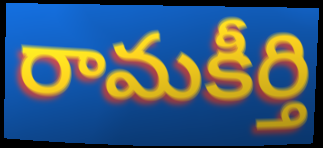
రామకీర్తి